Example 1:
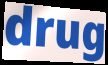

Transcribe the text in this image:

drug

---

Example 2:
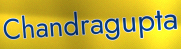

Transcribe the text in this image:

Chandragupta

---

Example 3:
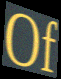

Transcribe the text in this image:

Of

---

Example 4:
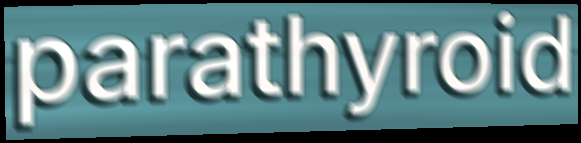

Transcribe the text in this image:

parathyroid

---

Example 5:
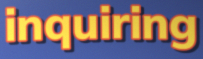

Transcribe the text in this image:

inquiring